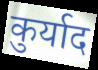
कुर्याद